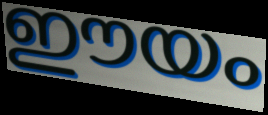
ഈയം